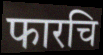
फारचि